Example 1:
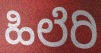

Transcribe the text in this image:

ಹಿಲೆರಿ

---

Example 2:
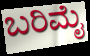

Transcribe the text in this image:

ಬರಿಮೈ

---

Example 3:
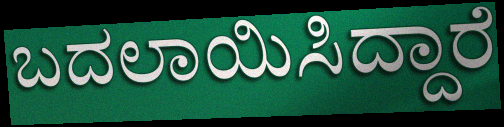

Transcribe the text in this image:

ಬದಲಾಯಿಸಿದ್ದಾರೆ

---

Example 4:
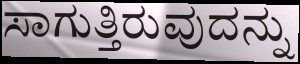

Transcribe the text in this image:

ಸಾಗುತ್ತಿರುವುದನ್ನು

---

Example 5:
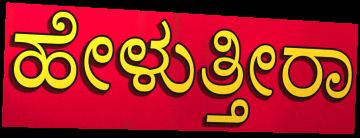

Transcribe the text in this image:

ಹೇಳುತ್ತೀರಾ